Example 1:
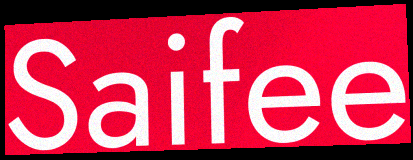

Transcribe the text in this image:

Saifee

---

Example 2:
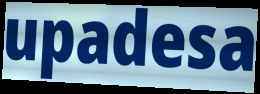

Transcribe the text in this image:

upadesa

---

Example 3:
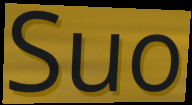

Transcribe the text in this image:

Suo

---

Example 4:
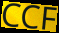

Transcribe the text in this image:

CCF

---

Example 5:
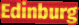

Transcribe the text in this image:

Edinburg